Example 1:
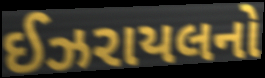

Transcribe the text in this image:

ઈઝરાયલનો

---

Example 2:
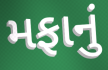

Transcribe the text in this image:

મફાનું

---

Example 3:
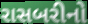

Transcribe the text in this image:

રાસબરીનો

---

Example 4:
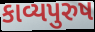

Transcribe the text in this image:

કાવ્યપુરુષ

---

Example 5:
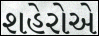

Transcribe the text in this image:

શહેરોએ